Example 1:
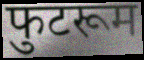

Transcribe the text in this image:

फुटरूम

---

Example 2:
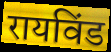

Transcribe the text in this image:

रायविंड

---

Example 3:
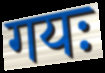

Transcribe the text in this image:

गयः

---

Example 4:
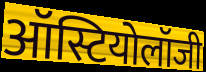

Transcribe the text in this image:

ऑस्टियोलॉजी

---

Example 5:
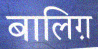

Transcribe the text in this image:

बालिग़